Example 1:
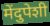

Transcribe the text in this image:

मेंदुपेशी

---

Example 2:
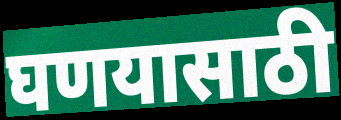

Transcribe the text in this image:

घणयासाठी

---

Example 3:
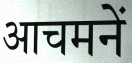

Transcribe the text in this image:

आचमनें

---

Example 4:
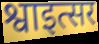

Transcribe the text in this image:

श्वाइत्सर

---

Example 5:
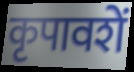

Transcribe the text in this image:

कृपावशें